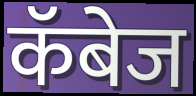
कॅबेज